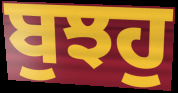
ਬੁਝਹੁ